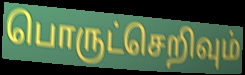
பொருட்செறிவும்